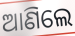
ଆଣିଲେ